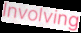
Involving